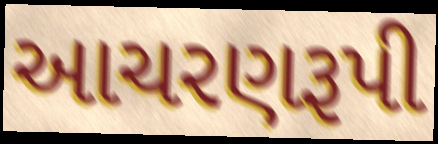
આચરણરૂપી